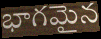
భాగమైన